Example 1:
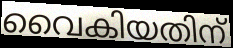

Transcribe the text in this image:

വൈകിയതിന്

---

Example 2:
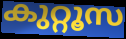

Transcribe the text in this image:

കുറ്റൂസ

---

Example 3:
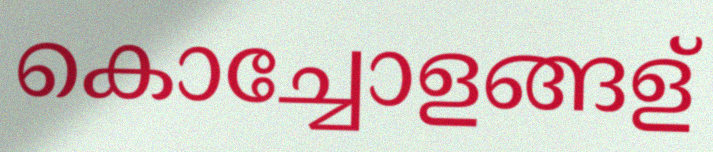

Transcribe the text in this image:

കൊച്ചോളങ്ങള്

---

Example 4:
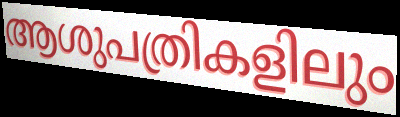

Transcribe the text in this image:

ആശുപത്രികളിലും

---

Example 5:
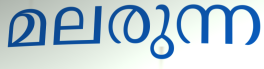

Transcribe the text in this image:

മലരുന്ന